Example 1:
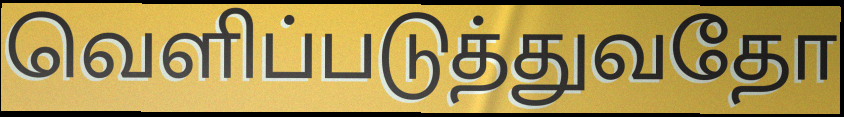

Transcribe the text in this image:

வெளிப்படுத்துவதோ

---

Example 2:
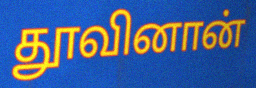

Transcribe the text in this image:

தூவினான்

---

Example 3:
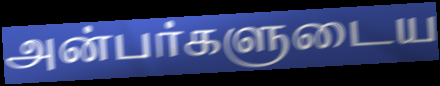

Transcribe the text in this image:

அன்பர்களுடைய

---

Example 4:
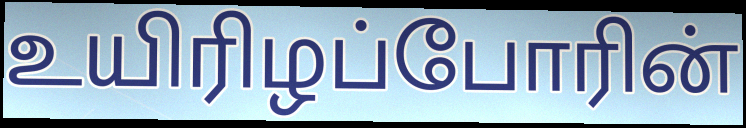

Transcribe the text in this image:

உயிரிழப்போரின்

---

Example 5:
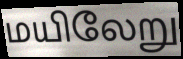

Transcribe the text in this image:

மயிலேறு